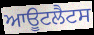
ਆਊਟਲੈਟਸ